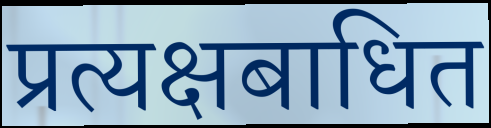
प्रत्यक्षबाधित